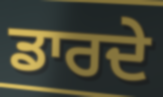
ਡਾਰਦੇ